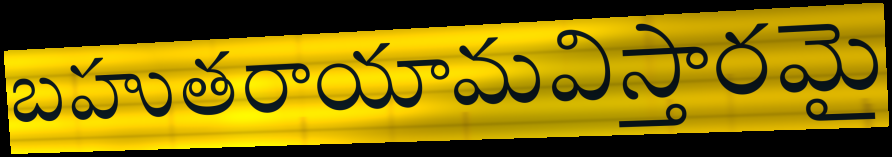
బహుతరాయామవిస్తారమై